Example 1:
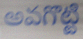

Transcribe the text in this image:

అవగొట్టి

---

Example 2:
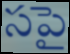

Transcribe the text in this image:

సపై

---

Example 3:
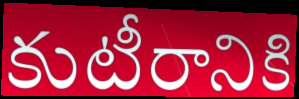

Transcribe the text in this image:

కుటీరానికి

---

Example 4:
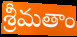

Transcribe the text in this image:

శ్రీమతాం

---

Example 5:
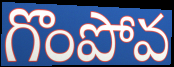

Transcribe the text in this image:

గొంపోవ